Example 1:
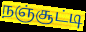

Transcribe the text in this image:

நஞ்சூட்டி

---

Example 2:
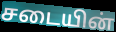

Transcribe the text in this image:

சடையின்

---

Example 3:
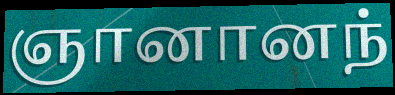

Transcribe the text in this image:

ஞானானந்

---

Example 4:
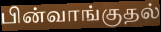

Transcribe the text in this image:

பின்வாங்குதல்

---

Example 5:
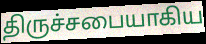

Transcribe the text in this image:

திருச்சபையாகிய